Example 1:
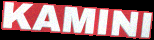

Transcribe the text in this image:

KAMINI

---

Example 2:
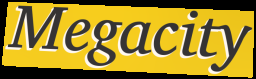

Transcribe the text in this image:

Megacity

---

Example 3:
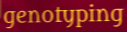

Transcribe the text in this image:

genotyping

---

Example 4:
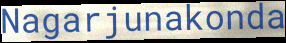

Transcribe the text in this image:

Nagarjunakonda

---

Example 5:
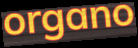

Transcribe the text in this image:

organo